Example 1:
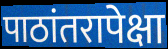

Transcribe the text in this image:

पाठांतरापेक्षा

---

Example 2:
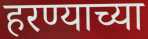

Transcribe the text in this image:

हरण्याच्या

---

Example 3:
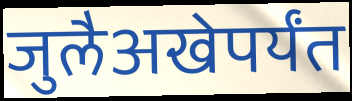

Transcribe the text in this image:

जुलैअखेपर्यंत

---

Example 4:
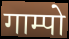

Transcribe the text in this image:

गाम्पो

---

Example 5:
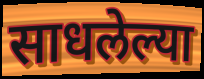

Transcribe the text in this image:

साधलेल्या